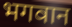
भगवान